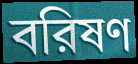
বরিষণ